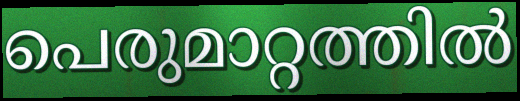
പെരുമാറ്റത്തിൽ